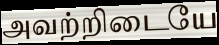
அவற்றிடையே